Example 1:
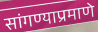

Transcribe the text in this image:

सांगण्याप्रमाणे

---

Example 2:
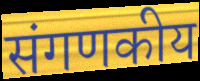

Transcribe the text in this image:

संगणकीय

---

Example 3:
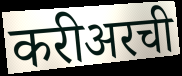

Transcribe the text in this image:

करीअरची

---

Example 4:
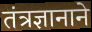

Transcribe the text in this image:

तंत्रज्ञानाने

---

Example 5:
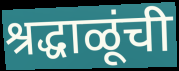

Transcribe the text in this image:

श्रद्धाळूंची